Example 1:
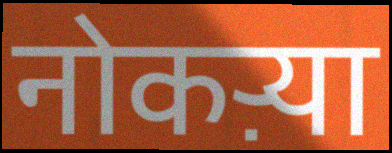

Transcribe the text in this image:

नोकऱ्‍या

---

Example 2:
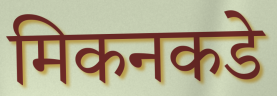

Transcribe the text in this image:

मिकनकडे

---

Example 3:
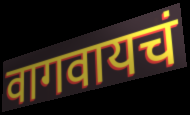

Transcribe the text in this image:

वागवायचं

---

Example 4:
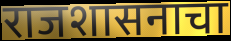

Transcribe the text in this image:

राजशासनाचा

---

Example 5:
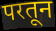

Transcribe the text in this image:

परतून